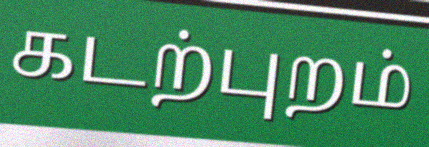
கடற்புறம்